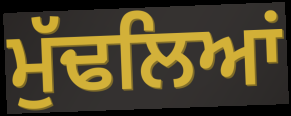
ਮੁੱਢਲਿਆਂ